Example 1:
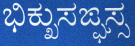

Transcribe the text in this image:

ಭಿಕ್ಖುಸಙ್ಘಸ್ಸ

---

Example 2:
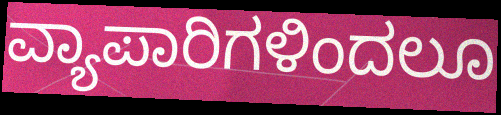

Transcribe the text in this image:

ವ್ಯಾಪಾರಿಗಳಿಂದಲೂ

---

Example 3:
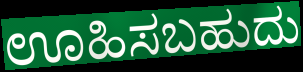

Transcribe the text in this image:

ಊಹಿಸಬಹುದು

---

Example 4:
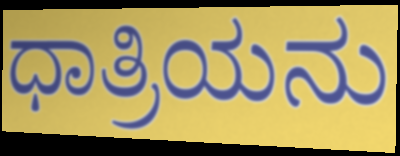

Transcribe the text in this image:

ಧಾತ್ರಿಯನು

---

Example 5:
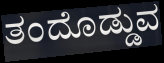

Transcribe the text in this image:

ತಂದೊಡ್ಡುವ